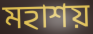
মহাশয়